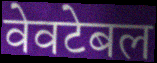
वेवटेबल